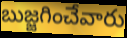
బుజ్జగించేవారు